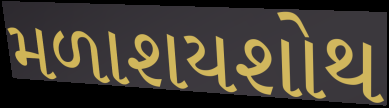
મળાશયશોથ